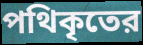
পথিকৃতের